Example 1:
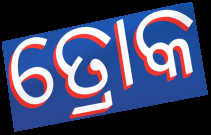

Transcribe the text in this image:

ତ୍ରୋକ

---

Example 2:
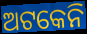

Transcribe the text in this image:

ଅଟକେନି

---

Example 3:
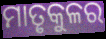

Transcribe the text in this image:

ମାତୃକୁଳର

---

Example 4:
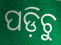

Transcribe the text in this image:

ପଡ଼ିଚୁ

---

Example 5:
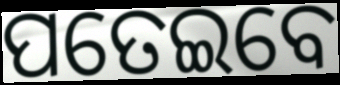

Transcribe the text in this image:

ପତେଇବେ